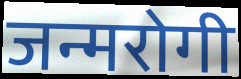
जन्मरोगी